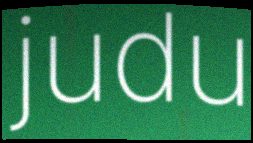
judu